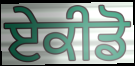
ਏਕੀਡੋ